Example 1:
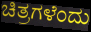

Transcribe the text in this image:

ಚಿತ್ರಗಳೆಂದು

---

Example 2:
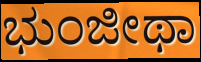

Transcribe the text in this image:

ಭುಂಜೀಥಾ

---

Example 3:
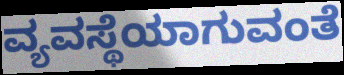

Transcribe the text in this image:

ವ್ಯವಸ್ಥೆಯಾಗುವಂತೆ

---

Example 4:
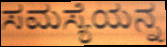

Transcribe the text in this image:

ಸಮಸ್ಯೆಯನ್ನ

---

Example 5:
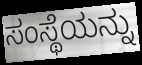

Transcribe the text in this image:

ಸಂಸ್ಥೆಯನ್ನು